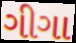
ગીગા